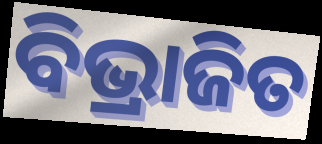
ବିଭ୍ରାଜିତ